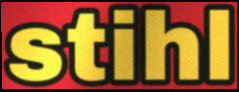
stihl